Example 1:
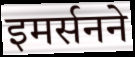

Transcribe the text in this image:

इमर्सनने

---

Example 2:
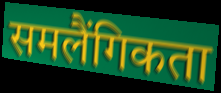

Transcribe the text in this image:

समलैंगिकता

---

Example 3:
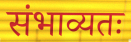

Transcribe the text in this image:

संभाव्यतः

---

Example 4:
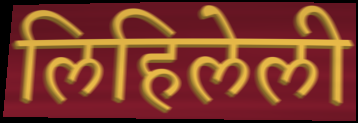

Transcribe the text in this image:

लिहिलेली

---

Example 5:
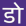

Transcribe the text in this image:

डो